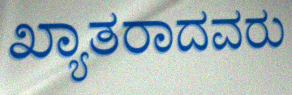
ಖ್ಯಾತರಾದವರು